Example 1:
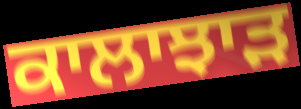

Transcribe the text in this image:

ਕਾਲਾਝਾਡ਼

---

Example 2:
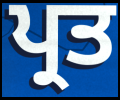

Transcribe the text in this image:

ਪ੍ਰਤ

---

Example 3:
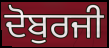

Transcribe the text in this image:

ਦੋਬੁਰਜੀ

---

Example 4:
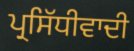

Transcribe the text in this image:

ਪ੍ਰਸਿੱਧੀਵਾਦੀ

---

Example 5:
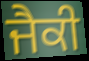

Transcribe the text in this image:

ਜੈਕੀ